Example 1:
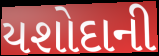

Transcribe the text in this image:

યશોદાની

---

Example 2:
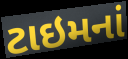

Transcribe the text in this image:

ટાઇમનાં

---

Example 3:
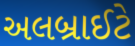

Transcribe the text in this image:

અલબ્રાઈટે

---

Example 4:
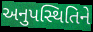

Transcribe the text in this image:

અનુપસ્થિતિને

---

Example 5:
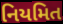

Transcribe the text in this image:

નિયમિત